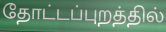
தோட்டப்புறத்தில்